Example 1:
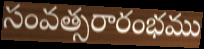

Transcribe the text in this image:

సంవత్సరారంభము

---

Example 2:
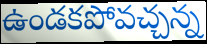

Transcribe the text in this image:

ఉండకపోవచ్చన్న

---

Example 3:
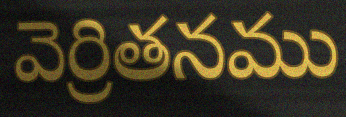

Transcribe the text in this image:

వెర్రితనము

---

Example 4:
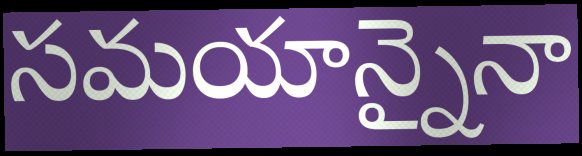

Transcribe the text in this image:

సమయాన్నైనా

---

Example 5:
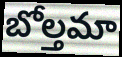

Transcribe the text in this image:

బోల్తమా